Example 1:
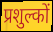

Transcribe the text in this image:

प्रशुल्कों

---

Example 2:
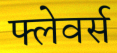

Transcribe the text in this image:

फ्लेवर्स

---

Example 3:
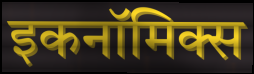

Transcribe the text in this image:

इकनॉमिक्स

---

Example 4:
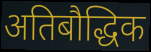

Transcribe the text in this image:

अतिबौद्धिक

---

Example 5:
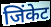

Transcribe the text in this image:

जिंकेट